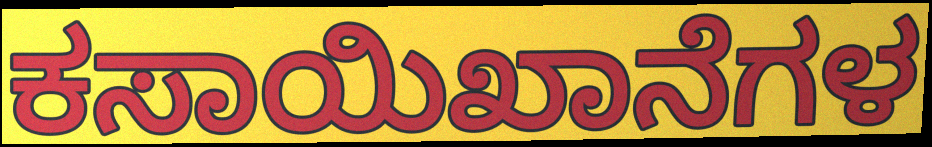
ಕಸಾಯಿಖಾನೆಗಳ